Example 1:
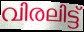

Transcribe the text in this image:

വിരലിട്ട്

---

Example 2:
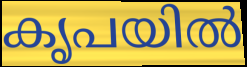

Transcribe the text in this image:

കൃപയിൽ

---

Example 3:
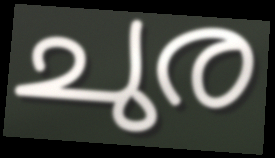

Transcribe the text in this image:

ചുര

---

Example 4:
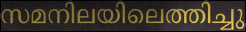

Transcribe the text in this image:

സമനിലയിലെത്തിച്ചു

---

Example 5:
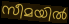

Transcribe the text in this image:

സീമയിൽ